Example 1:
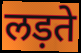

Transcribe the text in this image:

लड़ते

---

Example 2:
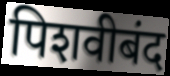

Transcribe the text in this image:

पिशवीबंद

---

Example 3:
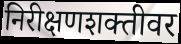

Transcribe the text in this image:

निरीक्षणशक्तीवर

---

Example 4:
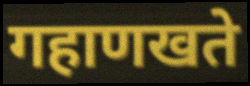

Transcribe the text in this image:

गहाणखते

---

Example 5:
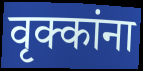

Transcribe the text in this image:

वृक्कांना